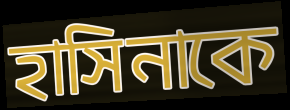
হাসিনাকে